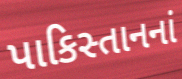
પાકિસ્તાનનાં